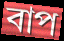
বাপ